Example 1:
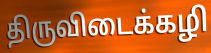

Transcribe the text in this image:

திருவிடைக்கழி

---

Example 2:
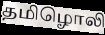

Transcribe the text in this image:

தமிழொலி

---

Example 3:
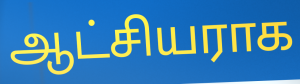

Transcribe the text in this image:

ஆட்சியராக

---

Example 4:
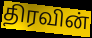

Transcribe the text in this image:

திரவின்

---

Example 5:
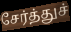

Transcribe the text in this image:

சேர்த்துச்